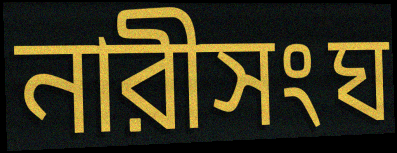
নারীসংঘ